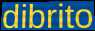
dibrito